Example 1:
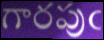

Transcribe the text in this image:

గారపుఁ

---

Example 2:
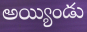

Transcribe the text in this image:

అయ్యిండు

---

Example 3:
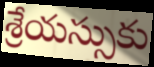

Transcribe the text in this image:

శ్రేయస్సుకు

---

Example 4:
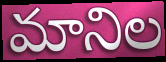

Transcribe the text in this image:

మానిల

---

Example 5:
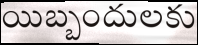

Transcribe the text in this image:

యిబ్బందులకు